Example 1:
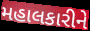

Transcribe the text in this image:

મહાલકારીને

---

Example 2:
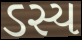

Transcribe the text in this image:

ઽસ્ય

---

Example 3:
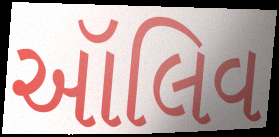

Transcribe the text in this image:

ઑલિવ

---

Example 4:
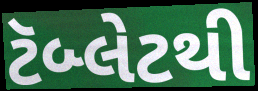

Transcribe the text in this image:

ટૅબ્લેટથી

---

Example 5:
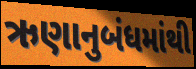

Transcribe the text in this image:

ઋણાનુબંધમાંથી